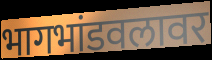
भागभांडवलावर